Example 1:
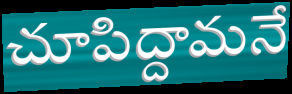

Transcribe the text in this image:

చూపిద్దామనే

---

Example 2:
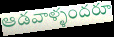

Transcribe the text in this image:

ఆడవాళ్ళందరూ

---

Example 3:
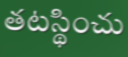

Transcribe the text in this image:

తటస్థించు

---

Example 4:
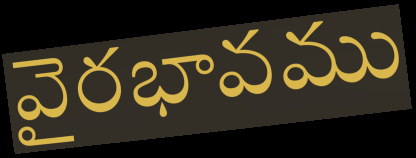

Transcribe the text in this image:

వైరభావము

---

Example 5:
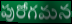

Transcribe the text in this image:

పురోగమన